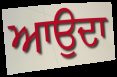
ਆਉਦਾ